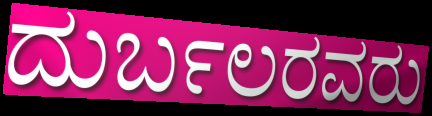
ದುರ್ಬಲರವರು